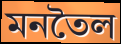
মনতৈল